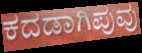
ಕದಡಾಗಿಪುವು